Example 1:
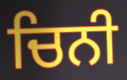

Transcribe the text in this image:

ਚਿਨੀ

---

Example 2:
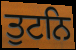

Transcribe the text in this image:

ਤੁਟਨਿ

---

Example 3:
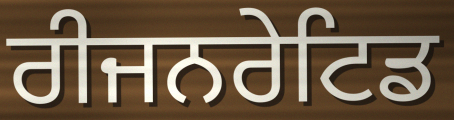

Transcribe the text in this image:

ਰੀਜਨਰੇਟਿਡ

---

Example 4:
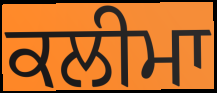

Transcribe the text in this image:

ਕਲੀਮਾ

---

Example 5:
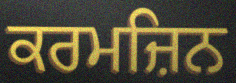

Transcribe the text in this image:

ਕਰਮਜ਼ਿਨ